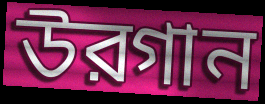
উরগান